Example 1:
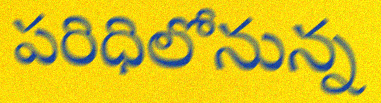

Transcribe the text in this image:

పరిధిలోనున్న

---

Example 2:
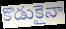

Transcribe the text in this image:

కొడుకైనా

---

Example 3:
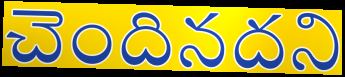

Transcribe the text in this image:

చెందినదని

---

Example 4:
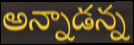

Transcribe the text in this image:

అన్నాడన్న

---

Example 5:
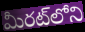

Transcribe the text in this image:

మీరట్‌లోని